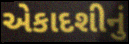
એકાદશીનું